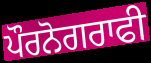
ਪੌਰਨੋਗਰਾਫੀ